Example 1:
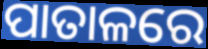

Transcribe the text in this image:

ପାତାଳରେ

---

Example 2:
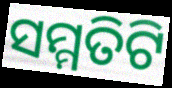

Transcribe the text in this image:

ସମ୍ମତିଟି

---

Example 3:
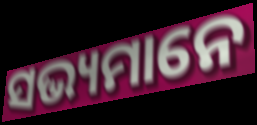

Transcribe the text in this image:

ସଭ୍ୟମାନେ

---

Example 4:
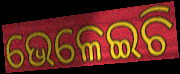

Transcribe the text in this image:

ଭେଳେଇଚି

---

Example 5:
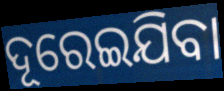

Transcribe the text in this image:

ଦୂରେଇଯିବା